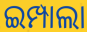
ଇମ୍ପାଲା